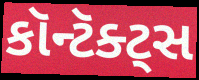
કૉન્ટૅક્ટ્સ